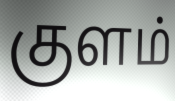
குளம்